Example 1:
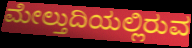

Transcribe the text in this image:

ಮೇಲ್ತುದಿಯಲ್ಲಿರುವ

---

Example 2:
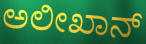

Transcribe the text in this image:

ಅಲೀಖಾನ್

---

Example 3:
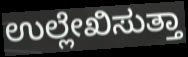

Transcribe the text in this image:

ಉಲ್ಲೇಖಿಸುತ್ತಾ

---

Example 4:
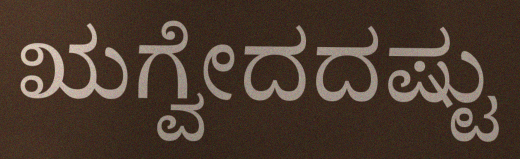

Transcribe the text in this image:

ಋಗ್ವೇದದಷ್ಟು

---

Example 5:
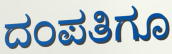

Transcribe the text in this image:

ದಂಪತಿಗೂ